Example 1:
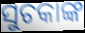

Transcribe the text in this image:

ସୁଚକାଙ୍କ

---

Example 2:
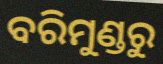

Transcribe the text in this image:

ବରିମୁଣ୍ଡରୁ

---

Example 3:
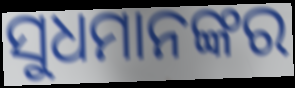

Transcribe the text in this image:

ସୁଧମାନଙ୍କର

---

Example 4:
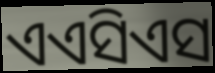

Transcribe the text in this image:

ଏଏସିଏସ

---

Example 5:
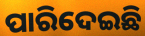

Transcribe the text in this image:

ପାରିଦେଇଛି